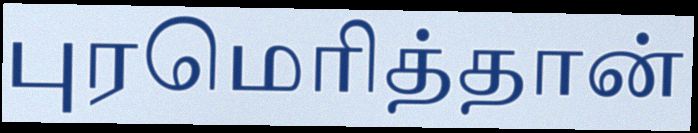
புரமெரித்தான்